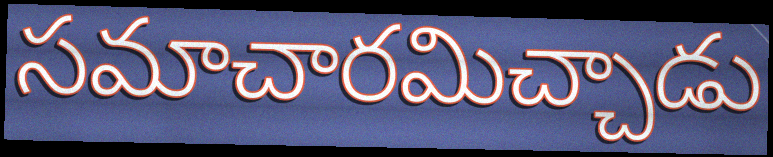
సమాచారమిచ్చాడు